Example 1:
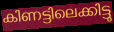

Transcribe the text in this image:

കിണട്ടിലെക്കിട്ടു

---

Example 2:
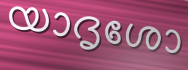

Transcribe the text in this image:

യാദൃശോ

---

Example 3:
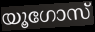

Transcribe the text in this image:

യൂഗോസ്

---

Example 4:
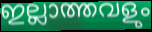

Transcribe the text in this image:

ഇല്ലാത്തവളും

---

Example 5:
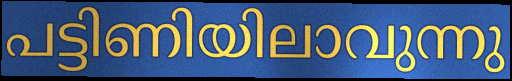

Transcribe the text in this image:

പട്ടിണിയിലാവുന്നു